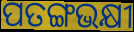
ପତଙ୍ଗଭକ୍ଷୀ